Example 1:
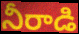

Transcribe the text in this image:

నీరాడి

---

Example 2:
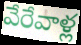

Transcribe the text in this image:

వేరేవాళ్ల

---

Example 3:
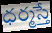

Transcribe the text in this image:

ధర్మస్తే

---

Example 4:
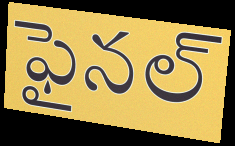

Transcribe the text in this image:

ఫైనల్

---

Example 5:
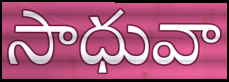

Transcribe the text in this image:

సాధువా